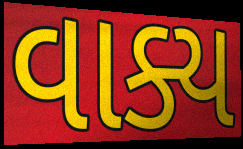
વાક્ય